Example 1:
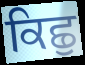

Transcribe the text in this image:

ਕਿਛੁ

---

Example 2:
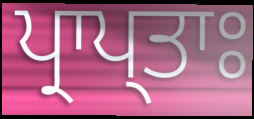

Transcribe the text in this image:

ਪ੍ਰਾਪ੍ਤਾਃ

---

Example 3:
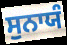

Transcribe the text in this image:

ਸੁਨਾਯੰ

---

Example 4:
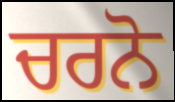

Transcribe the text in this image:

ਚਰਨੋ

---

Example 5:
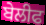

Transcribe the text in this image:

ਬੇਲੀਫ